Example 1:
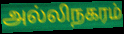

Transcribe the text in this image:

அல்லிநகரம்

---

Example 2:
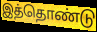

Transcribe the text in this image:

இத்தொண்டு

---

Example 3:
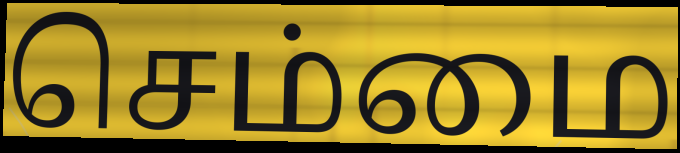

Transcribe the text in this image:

செம்மை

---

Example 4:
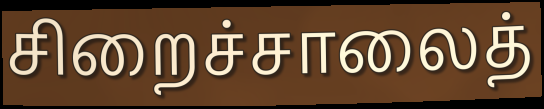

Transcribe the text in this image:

சிறைச்சாலைத்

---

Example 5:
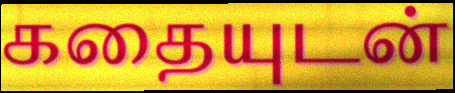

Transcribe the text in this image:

கதையுடன்